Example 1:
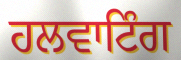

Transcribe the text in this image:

ਹਲਵਾਟਿੰਗ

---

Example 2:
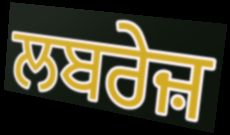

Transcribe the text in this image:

ਲਬਰੇਜ਼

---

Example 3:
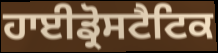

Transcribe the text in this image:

ਹਾਈਡ੍ਰੋਸਟੈਟਿਕ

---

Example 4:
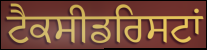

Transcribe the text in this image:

ਟੈਕਸੀਡਰਿਸਟਾਂ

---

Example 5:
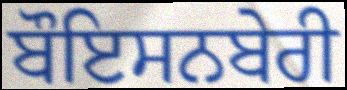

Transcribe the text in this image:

ਬੌਇਸਨਬੇਰੀ